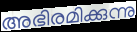
അഭിരമിക്കുന്നു